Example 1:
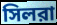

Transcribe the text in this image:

সিলরা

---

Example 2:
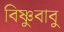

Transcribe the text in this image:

বিষ্ণুবাবু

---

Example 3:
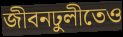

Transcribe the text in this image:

জীবনঢুলীতেও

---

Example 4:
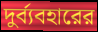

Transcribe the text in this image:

দুর্ব্যবহারের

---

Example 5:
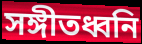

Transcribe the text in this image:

সঙ্গীতধ্বনি